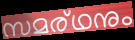
സമര്ഥനും